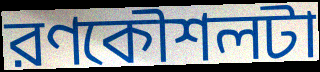
রণকৌশলটা